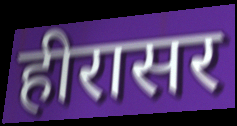
हीरासर